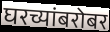
घरच्यांबरोबर